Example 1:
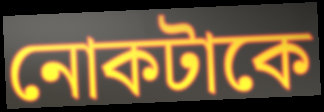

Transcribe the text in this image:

নোকটাকে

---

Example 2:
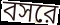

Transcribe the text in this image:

বসরে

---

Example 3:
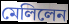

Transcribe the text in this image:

মেলিলেন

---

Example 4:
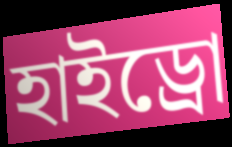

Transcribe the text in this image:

হাইড্রো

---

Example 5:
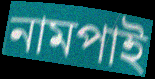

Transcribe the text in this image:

নামপাই